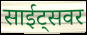
साईट्सवर